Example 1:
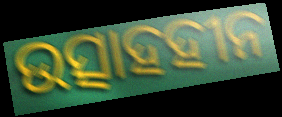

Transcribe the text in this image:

ଉତ୍ସାହହୀନ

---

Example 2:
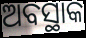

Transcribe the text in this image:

ଅବସ୍ଥାକ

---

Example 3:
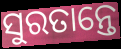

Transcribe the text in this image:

ସୁରତାନ୍ତେ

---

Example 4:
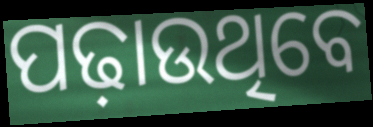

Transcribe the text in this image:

ପଢ଼ାଉଥିବେ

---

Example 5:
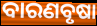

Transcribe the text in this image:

ବାରଣବୃଷା